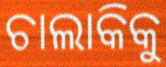
ଚାଲାକିକୁ